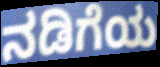
ನಡಿಗೆಯ